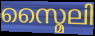
സ്മൈലി